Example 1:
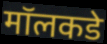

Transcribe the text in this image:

मॉलकडे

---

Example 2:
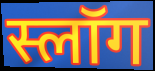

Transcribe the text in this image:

स्लॉग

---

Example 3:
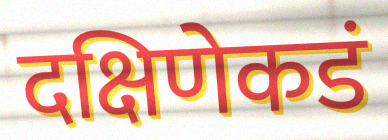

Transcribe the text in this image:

दक्षिणेकडं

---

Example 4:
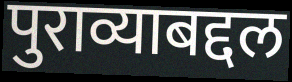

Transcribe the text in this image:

पुराव्याबद्दल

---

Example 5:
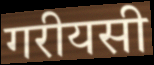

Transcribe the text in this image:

गरीयसी